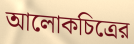
আলোকচিত্রের